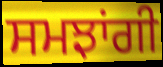
ਸਮਝਾਂਗੀ